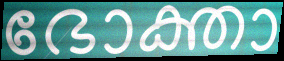
ഭോക്താ